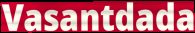
Vasantdada